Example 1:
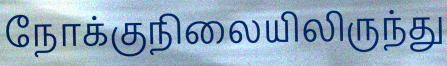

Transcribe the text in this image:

நோக்குநிலையிலிருந்து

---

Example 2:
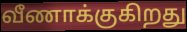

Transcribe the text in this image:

வீணாக்குகிறது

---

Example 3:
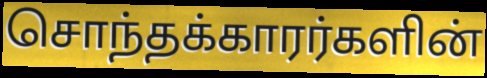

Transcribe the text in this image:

சொந்தக்காரர்களின்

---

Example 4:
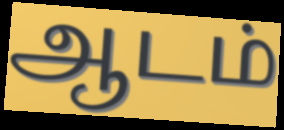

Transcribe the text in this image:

ஆடம்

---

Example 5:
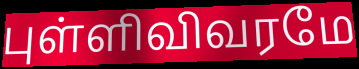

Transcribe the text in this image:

புள்ளிவிவரமே